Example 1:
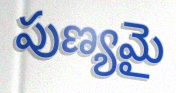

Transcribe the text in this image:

పుణ్యమై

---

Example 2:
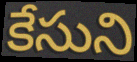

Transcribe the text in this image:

కేసుని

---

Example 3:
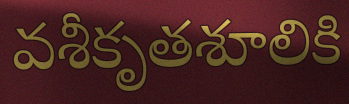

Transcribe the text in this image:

వశీకృతశూలికి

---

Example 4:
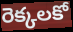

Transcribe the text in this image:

రెక్కలకో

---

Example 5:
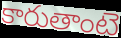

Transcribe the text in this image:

కారుతాంటె